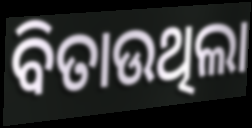
ବିତାଉଥିଲା